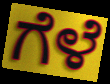
ಗೆಳೆ